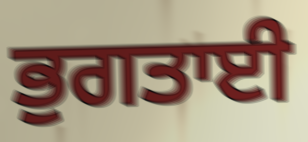
ਭੁਗਤਾਈ